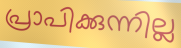
പ്രാപിക്കുന്നില്ല